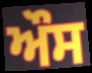
ਔਸ